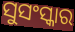
ସୁସଂସ୍କାର